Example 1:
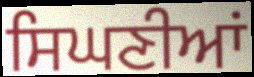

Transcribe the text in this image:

ਸਿਘਣੀਆਂ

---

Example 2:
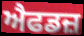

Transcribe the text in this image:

ਐਫਡਜ਼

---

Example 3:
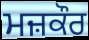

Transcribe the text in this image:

ਮਜ਼ਕੌਰ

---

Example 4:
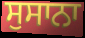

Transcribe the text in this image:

ਸੁਸਾਨਾ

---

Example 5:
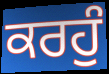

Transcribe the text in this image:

ਕਰਹੁੰ